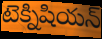
టెక్నిషియన్